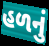
હળનું